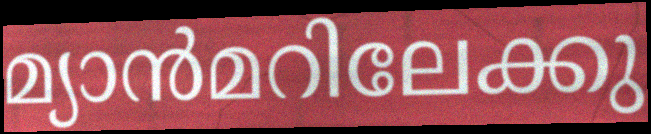
മ്യാൻമറിലേക്കു